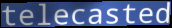
telecasted